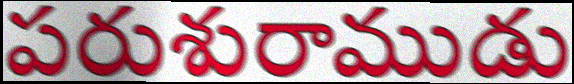
పరుశురాముడు